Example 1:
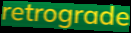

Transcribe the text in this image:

retrograde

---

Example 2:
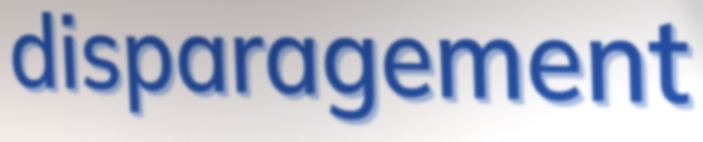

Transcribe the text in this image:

disparagement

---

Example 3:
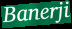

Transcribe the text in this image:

Banerji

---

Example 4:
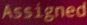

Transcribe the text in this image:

Assigned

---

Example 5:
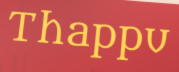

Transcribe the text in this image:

Thappu